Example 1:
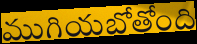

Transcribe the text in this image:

ముగియబోతోంది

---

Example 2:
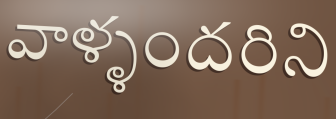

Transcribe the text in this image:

వాళ్ళందరిని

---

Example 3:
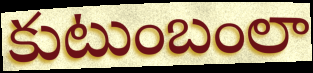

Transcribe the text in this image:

కుటుంబంలా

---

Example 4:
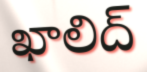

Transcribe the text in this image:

ఖాలిద్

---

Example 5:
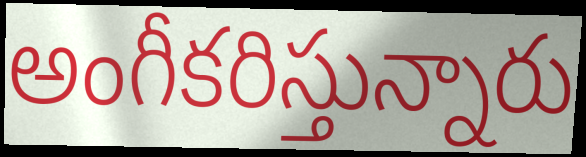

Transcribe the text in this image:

అంగీకరిస్తున్నారు